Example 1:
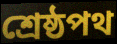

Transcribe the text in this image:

শ্রেষ্ঠপথ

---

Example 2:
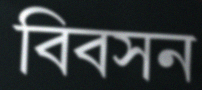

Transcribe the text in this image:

বিবসন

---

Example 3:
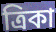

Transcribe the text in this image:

ত্রিকা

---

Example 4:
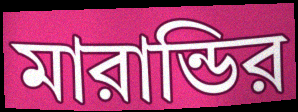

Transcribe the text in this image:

মারান্ডির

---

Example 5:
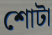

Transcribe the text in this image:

শোটা